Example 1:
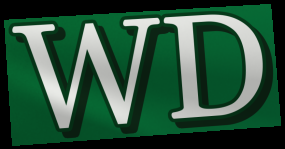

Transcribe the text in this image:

WD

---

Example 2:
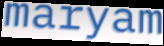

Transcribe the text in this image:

maryam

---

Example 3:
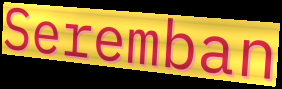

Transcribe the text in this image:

Seremban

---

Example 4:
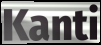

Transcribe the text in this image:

Kanti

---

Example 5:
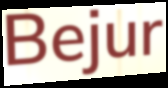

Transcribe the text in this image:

Bejur